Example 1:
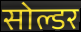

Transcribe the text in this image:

सोल्डर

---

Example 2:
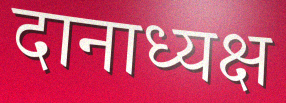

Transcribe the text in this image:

दानाध्यक्ष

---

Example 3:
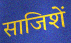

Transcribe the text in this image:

साजिशें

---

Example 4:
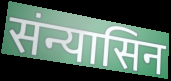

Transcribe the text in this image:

संन्यासिन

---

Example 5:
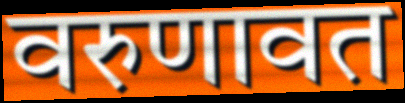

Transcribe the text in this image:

वरुणावत